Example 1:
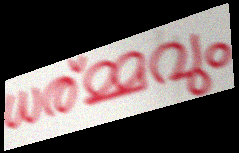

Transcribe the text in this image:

ധര്മ്മവും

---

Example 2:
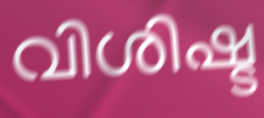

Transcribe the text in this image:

വിശിഷ്ട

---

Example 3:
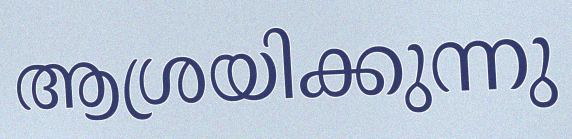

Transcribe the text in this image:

ആശ്രയിക്കുന്നു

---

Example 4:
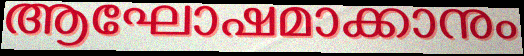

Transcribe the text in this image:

ആഘോഷമാക്കാനും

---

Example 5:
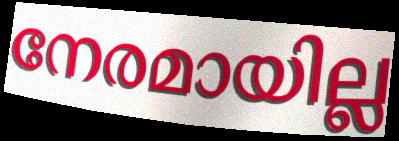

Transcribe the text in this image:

നേരമായില്ല